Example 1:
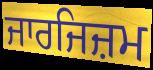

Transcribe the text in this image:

ਜਾਰਜਿਜ਼ਮ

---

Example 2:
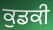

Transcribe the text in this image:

ਕੁਡਕੀ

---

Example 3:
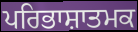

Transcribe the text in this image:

ਪਰਿਭਾਸ਼ਾਤਮਕ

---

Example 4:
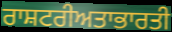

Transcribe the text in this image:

ਰਾਸ਼ਟਰੀਅਤਾਭਾਰਤੀ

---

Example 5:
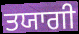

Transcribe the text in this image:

ਤਯਾਗੀ